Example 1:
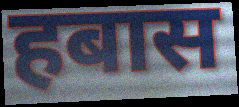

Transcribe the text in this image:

हबास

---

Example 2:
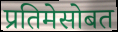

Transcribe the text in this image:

प्रतिमेसोबत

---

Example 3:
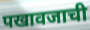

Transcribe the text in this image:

पखावजाची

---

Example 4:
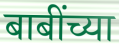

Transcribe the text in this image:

बाबींच्या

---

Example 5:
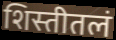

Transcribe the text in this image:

शिस्तीतलं